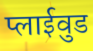
प्लाईवुड